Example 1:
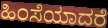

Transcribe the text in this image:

ಹಿಂಸೆಯಾದರೆ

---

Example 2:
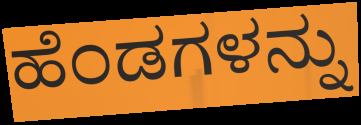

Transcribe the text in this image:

ಹೆಂಡಗಳನ್ನು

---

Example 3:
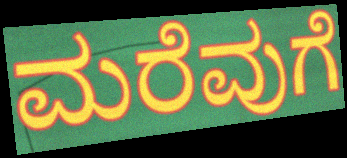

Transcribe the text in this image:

ಮರೆವುಗೆ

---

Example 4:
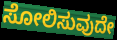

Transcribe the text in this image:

ಸೋಲಿಸುವುದೇ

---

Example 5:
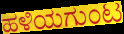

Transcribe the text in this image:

ಹಳಿಯಗುಂಟ